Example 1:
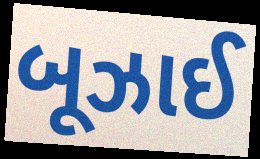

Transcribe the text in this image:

બૂઝાઈ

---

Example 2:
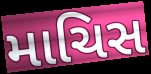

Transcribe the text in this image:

માચિસ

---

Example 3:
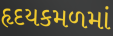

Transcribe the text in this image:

હૃદયકમળમાં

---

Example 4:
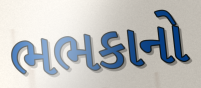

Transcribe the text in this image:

ભભકાનો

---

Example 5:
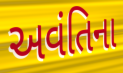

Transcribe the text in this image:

અવંતિના